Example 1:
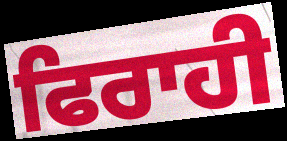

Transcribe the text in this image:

ਫਿਰਾਹੀ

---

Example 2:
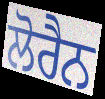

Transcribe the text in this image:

ਲੋਰੈਨ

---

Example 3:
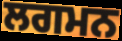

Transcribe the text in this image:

ਲਗਮਨ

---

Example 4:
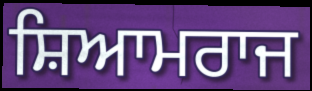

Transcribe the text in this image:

ਸ਼ਿਆਮਰਾਜ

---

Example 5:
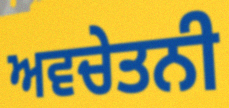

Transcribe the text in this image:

ਅਵਚੇਤਨੀ